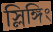
স্লিঙ্গিং